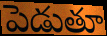
పెడుతూ